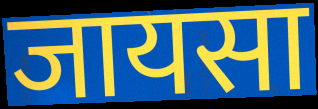
जायसा